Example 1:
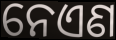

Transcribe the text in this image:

ନେଏଣ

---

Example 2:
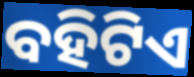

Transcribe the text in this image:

ବହିଟିଏ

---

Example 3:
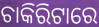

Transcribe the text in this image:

ଚାକିରିଟାରେ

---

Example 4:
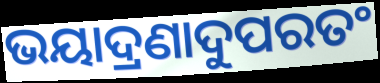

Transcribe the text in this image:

ଭୟାଦ୍ରଣାଦୁପରତଂ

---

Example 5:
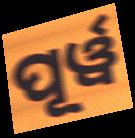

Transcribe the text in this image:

ପୂର୍ୱ